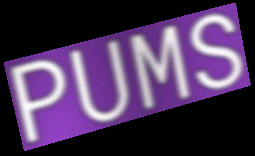
PUMS